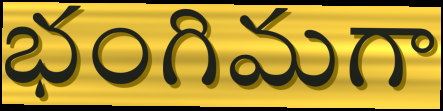
భంగిమగా